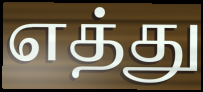
எத்து